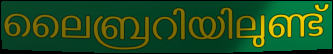
ലൈബ്രറിയിലുണ്ട്